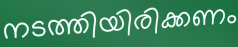
നടത്തിയിരിക്കണം